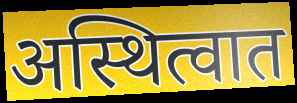
अस्थित्वात